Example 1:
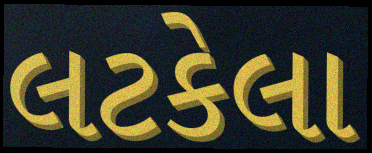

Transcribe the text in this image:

લટકેલા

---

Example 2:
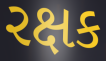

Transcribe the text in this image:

રક્ષક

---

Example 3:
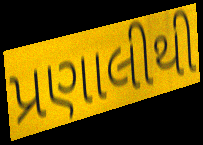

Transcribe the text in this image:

પ્રણાલીથી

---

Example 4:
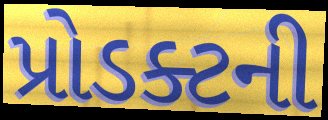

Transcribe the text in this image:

પ્રોડક્ટની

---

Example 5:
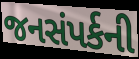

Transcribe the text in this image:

જનસંપર્કની